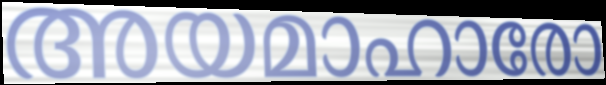
അയമാഹാരോ